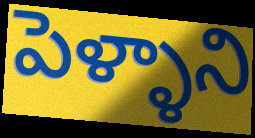
పెళ్ళాని